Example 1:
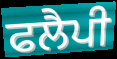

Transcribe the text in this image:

ਫਲੈਪੀ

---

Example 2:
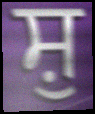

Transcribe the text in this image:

ਸ਼ੁ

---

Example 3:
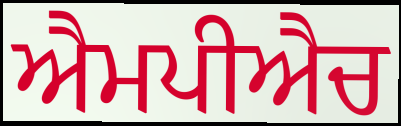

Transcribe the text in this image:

ਐਮਪੀਐਚ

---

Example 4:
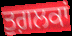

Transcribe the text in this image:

ਤੁਗ਼ਲਕਾਂ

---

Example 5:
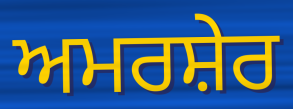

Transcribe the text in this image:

ਅਮਰਸ਼ੇਰ